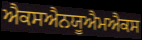
ਐਕਸਐਨਯੂਐਮਐਕਸ